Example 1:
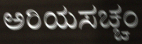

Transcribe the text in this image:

ಅರಿಯಸಚ್ಚಂ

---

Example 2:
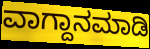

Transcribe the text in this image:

ವಾಗ್ದಾನಮಾಡಿ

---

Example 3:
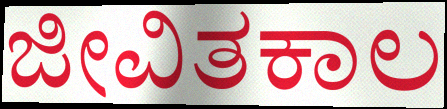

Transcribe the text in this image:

ಜೀವಿತಕಾಲ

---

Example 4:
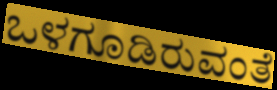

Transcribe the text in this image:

ಒಳಗೂಡಿರುವಂತೆ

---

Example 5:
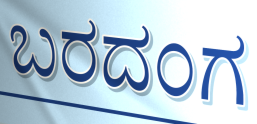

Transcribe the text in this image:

ಬರದಂಗ